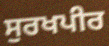
ਸੁਰਖਪੀਰ